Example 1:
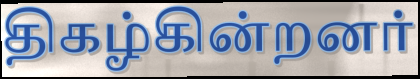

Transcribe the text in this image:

திகழ்கின்றனர்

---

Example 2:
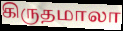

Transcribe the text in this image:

கிருதமாலா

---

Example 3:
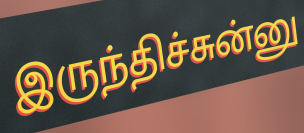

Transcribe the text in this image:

இருந்திச்சுன்னு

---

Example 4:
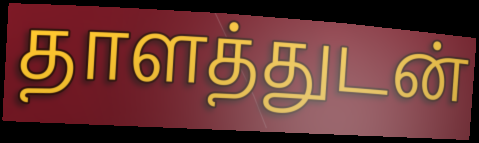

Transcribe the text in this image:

தாளத்துடன்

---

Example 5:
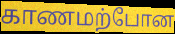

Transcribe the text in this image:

காணமற்போன